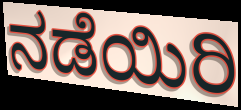
ನಡೆಯಿರಿ